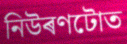
নিউৰণটোত